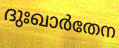
ദുഃഖാർതേന